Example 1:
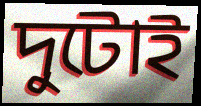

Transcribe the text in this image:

দুটোই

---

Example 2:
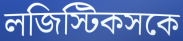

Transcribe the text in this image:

লজিস্টিকসকে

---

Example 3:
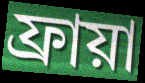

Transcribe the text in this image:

ফ্রায়া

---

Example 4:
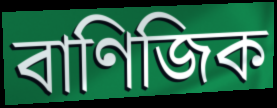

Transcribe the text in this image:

বাণিজিক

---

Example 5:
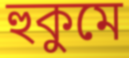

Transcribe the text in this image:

হুকুমে